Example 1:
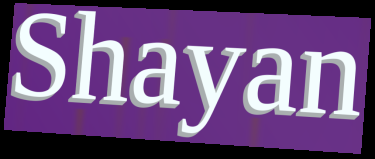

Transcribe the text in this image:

Shayan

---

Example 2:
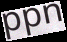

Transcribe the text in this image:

ppn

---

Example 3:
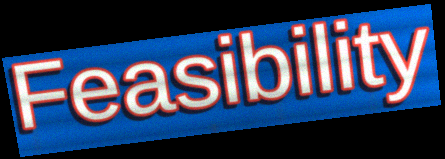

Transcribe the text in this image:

Feasibility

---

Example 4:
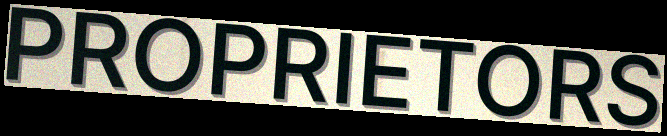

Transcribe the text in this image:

PROPRIETORS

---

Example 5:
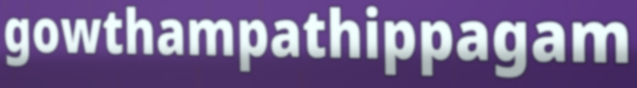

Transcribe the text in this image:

gowthampathippagam